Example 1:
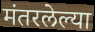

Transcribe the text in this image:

मंतरलेल्या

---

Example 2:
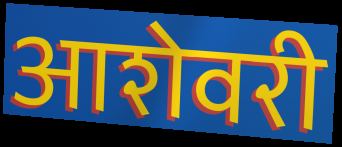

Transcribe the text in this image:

आशेवरी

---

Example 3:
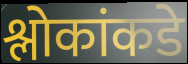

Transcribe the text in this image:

श्लोकांकडे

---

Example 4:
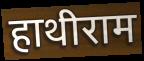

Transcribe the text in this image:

हाथीराम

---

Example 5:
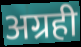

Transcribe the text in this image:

अग्रही